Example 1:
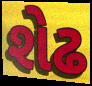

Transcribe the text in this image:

શેઢ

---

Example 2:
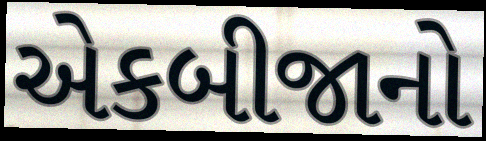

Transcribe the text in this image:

એકબીજાનો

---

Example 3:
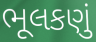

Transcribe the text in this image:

ભૂલકણું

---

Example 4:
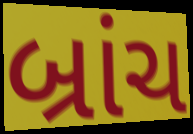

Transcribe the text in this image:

બ્રાંચ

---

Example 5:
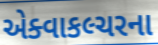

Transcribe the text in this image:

એક્વાકલ્ચરના